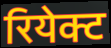
रियेक्ट